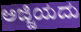
ಅಜ್ಜಿಯದು